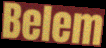
Belem